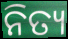
ନିତ୍ୟ